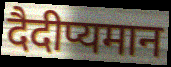
दैदीप्यमान